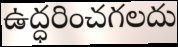
ఉద్ధరించగలదు